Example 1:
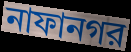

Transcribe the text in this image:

নাফানগর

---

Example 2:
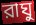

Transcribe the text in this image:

রাঘু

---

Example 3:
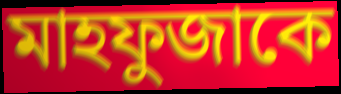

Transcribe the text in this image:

মাহফুজাকে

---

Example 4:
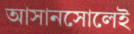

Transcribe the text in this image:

আসানসোলেই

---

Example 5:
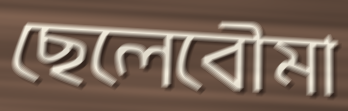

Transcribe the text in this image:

ছেলেবৌমা